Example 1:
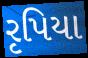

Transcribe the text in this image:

રૃપિયા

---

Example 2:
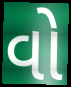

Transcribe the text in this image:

વો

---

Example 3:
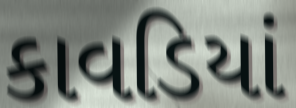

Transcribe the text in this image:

કાવડિયાં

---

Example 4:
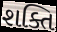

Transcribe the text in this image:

શક્તિ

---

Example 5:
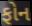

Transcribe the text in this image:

ફોન